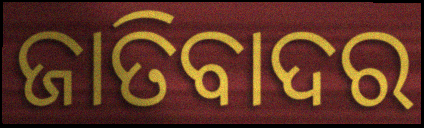
ଜାତିବାଦର